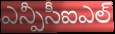
ఎన్పీసీఐఎల్